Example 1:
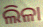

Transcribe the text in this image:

ଲିଳା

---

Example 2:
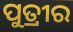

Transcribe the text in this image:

ପୁତ୍ରୀର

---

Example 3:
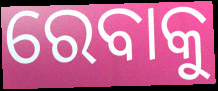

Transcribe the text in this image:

ରେବାକୁ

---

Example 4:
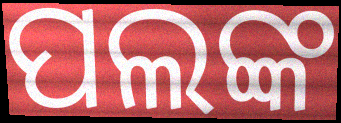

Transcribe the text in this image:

ପଲଙ୍କ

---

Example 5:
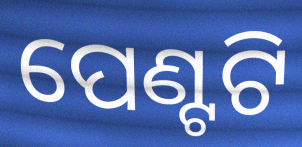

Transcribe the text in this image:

ପେଣ୍ଟଟି